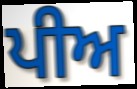
ਪੀਅ